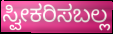
ಸ್ವೀಕರಿಸಬಲ್ಲ